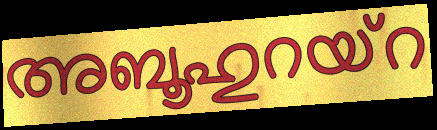
അബൂഹുറയ്റ